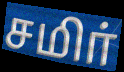
சமிர்